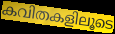
കവിതകളിലൂടെ